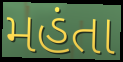
મહંતા